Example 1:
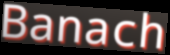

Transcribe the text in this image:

Banach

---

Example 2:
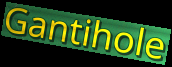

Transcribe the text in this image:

Gantihole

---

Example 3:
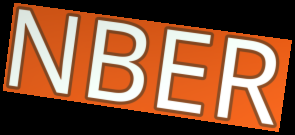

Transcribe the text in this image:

NBER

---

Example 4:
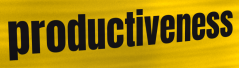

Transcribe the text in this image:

productiveness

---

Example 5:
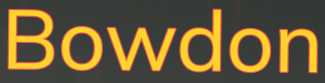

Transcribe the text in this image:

Bowdon